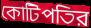
কোটিপতির